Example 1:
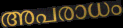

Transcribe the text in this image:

അപരാധം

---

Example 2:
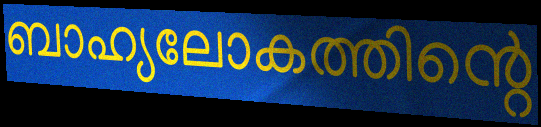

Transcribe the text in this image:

ബാഹ്യലോകത്തിന്റെ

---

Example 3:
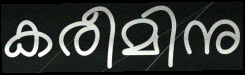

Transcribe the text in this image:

കരീമിനു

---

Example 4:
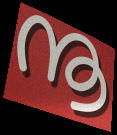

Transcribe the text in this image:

നൂ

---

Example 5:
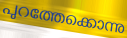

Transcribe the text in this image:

പുറത്തേക്കൊന്നു